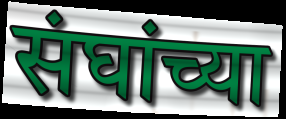
संघांच्या